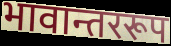
भावान्तररूप